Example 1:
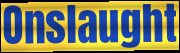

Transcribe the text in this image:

Onslaught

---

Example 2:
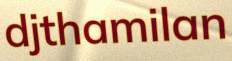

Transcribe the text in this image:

djthamilan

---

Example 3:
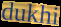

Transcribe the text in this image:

dukhi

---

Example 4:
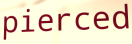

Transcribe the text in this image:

pierced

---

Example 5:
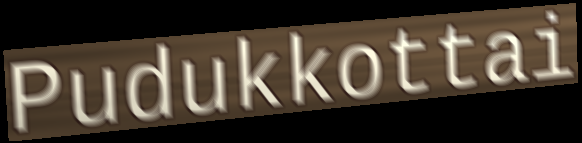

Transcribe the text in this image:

Pudukkottai